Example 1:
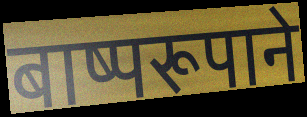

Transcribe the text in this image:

बाष्परूपाने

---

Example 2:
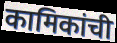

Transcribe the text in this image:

कामिकांची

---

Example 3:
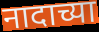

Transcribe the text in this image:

नादाच्या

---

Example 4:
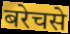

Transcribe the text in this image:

बरेचसे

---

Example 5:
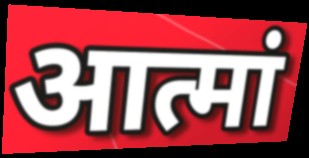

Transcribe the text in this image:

आत्मां